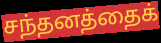
சந்தனத்தைக்